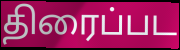
திரைப்பட